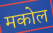
मकोल